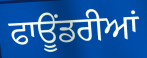
ਫਾਊਂਡਰੀਆਂ